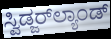
ಸ್ವಿಡ್ಜರ್‌ಲ್ಯಾಂಡ್